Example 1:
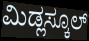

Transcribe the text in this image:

ಮಿಡ್ಲಸ್ಕೂಲ್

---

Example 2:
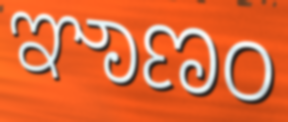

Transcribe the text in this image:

ಞಾಣಂ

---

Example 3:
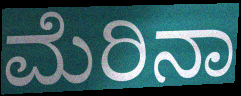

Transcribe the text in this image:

ಮೆರಿನಾ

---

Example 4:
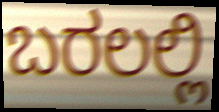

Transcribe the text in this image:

ಬರಲಲ್ಲಿ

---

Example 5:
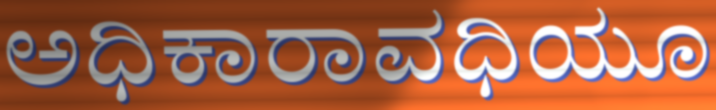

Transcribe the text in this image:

ಅಧಿಕಾರಾವಧಿಯೂ